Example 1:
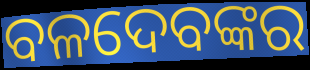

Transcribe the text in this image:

ବଳଦେବଙ୍କର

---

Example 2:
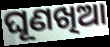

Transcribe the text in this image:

ଘୂଣଖିଆ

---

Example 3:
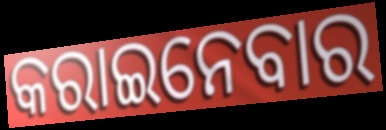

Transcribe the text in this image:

କରାଇନେବାର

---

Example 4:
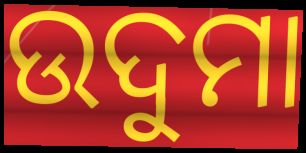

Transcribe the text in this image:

ଉଦୁମା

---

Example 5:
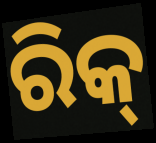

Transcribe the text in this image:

ରିକ୍